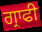
ਗ੍ਰਾਫੀ